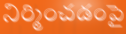
నిర్మించడంపై